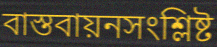
বাস্তবায়নসংশ্লিষ্ট